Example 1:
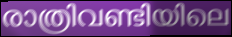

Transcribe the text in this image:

രാത്രിവണ്ടിയിലെ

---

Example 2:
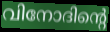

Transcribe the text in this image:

വിനോദിന്റെ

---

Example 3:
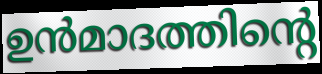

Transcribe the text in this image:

ഉൻമാദത്തിന്റെ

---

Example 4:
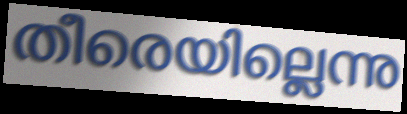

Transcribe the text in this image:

തീരെയില്ലെന്നു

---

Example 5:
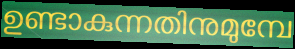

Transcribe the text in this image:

ഉണ്ടാകുന്നതിനുമുമ്പേ